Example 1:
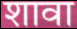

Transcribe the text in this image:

शावा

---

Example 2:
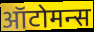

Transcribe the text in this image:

ऑटोमन्स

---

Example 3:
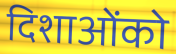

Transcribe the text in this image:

दिशाओंको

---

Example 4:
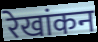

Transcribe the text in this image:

रेखांकन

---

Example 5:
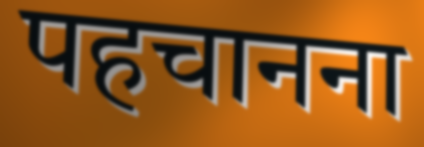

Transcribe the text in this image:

पहचानना